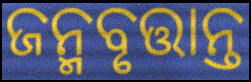
ଜନ୍ମବୃତ୍ତାନ୍ତ